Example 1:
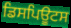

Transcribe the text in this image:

ਡਿਸਪਿਊਟਸ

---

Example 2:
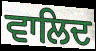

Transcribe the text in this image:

ਵਾਲਿਦ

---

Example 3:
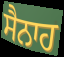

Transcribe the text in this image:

ਸੈਨਾਹ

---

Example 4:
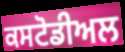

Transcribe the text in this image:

ਕਸਟੋਡੀਅਲ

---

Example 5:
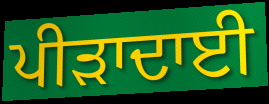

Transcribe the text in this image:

ਪੀੜਾਦਾਈ